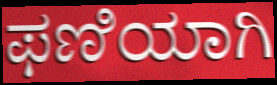
ಫಣಿಯಾಗಿ